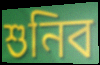
শুনিব